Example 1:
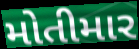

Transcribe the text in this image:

મોતીમાર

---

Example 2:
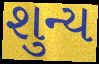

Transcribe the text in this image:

શુન્ય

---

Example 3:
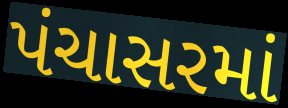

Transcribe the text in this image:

પંચાસરમાં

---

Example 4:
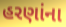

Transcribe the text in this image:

હરણાંના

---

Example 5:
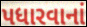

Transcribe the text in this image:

પધારવાનાં